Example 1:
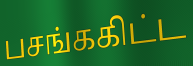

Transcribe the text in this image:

பசங்ககிட்ட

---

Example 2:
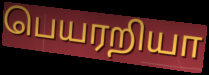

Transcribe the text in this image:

பெயரறியா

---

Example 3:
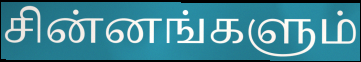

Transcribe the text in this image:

சின்னங்களும்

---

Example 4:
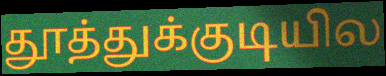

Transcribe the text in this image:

தூத்துக்குடியில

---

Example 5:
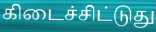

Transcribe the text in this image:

கிடைச்சிட்டுது